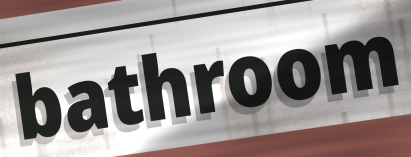
bathroom